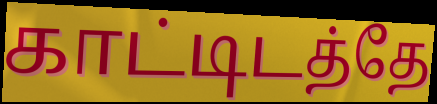
காட்டிடத்தே